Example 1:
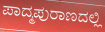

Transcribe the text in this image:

ಪಾದ್ಮಪುರಾಣದಲ್ಲಿ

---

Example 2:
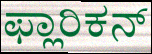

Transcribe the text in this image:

ಫ್ಲಾರಿಕನ್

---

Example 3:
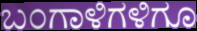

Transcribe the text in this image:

ಬಂಗಾಳಿಗಳಿಗೂ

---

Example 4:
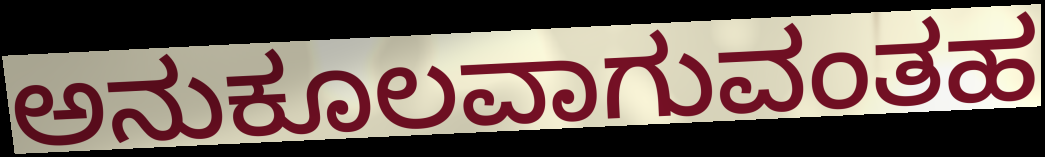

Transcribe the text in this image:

ಅನುಕೂಲವಾಗುವಂತಹ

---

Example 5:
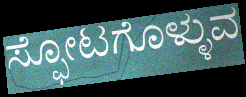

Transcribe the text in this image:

ಸ್ಫೋಟಗೊಳ್ಳುವ